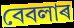
বেবলাৰ